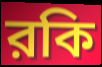
রকি